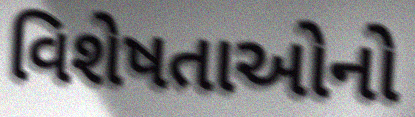
વિશેષતાઓનો